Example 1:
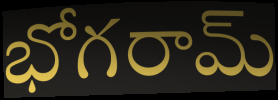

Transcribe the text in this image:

భోగరామ్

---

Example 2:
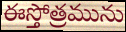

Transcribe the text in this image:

ఈస్తోత్రమును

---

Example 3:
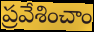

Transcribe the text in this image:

ప్రవేశించాం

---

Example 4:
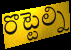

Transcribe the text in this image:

రొట్టెల్ని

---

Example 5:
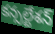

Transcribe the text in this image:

కన్సల్టేశన్